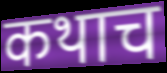
कथाच